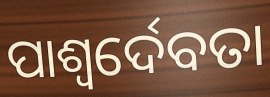
ପାଶ୍ୱର୍ଦେବତା